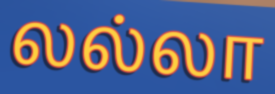
லல்லா